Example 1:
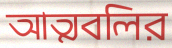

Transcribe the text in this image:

আত্মবলির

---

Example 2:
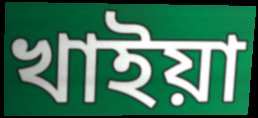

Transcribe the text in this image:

খাইয়া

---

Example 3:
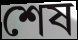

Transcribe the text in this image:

শেষ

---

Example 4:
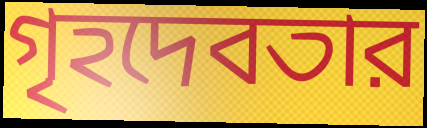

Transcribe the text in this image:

গৃহদেবতার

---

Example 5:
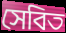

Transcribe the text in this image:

সেবিত